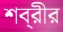
শব্‌রীর